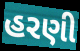
હરણી